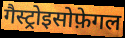
गैस्ट्रोइसोफ़ेगल